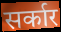
सर्कार